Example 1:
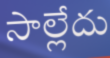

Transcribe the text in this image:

సాల్లేదు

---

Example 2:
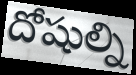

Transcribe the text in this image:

దోషుల్ని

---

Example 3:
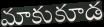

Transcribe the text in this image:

మాకుకూడ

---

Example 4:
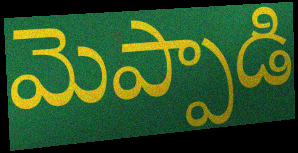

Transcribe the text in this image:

మెప్పాడి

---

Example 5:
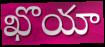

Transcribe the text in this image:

ఖొయా